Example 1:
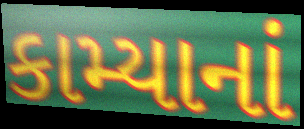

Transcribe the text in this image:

કામ્યાનાં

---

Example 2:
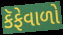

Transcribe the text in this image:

કૅફેવાળો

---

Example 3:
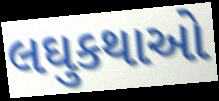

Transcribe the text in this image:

લઘુકથાઓ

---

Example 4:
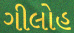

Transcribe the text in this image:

ગીલોહ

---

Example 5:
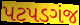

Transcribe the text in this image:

પટપડગંજ